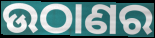
ଉଠାଣର